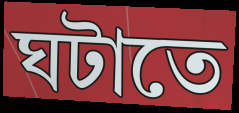
ঘটাতে